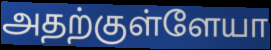
அதற்குள்ளேயா